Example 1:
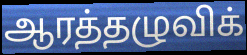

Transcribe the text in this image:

ஆரத்தழுவிக்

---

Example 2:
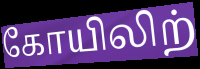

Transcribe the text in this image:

கோயிலிற்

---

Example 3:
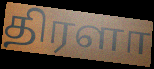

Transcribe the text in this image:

திரளா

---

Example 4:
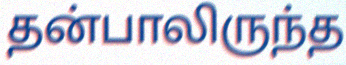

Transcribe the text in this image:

தன்பாலிருந்த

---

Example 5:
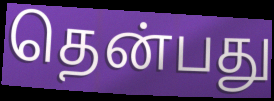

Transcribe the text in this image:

தென்பது